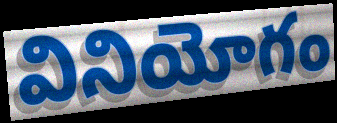
వినియోగం